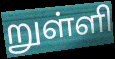
றுள்ளி